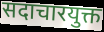
सदाचारयुक्त